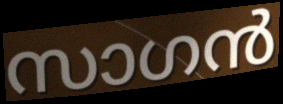
സാഗൻ